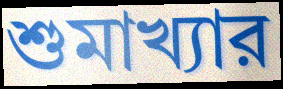
শুমাখ্যার